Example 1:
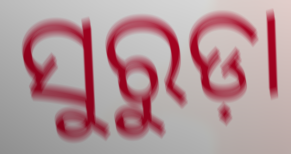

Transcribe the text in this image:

ସୁରୁଡ଼ା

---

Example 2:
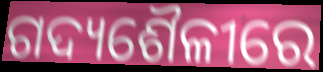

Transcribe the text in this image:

ଗଦ୍ୟଶୈଳୀରେ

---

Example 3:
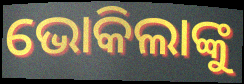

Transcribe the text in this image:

ଭୋକିଲାଙ୍କୁ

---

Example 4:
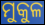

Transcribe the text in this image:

ମୁକୁଳ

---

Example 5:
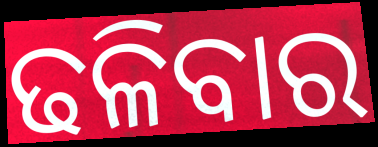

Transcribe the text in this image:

ଢଳିବାର